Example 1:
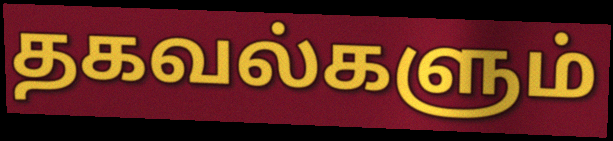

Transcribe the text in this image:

தகவல்களும்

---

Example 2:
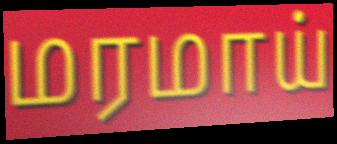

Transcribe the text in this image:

மரமாய்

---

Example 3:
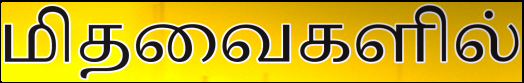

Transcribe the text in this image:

மிதவைகளில்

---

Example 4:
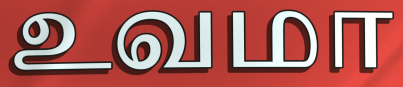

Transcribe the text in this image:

உவமா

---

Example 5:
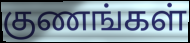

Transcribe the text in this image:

குணங்கள்